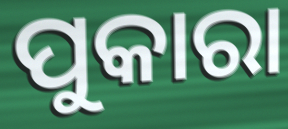
ପୁକାରା